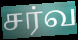
சர்வ